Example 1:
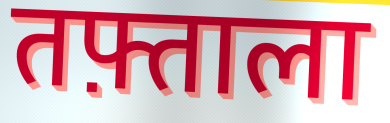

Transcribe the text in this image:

तफ़्ताला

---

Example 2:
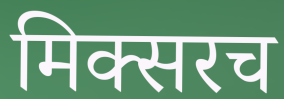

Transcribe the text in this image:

मिक्सरच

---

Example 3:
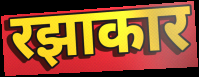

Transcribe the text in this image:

रझाकार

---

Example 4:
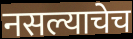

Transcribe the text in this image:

नसल्याचेच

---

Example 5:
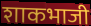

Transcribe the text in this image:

शाकभाजी